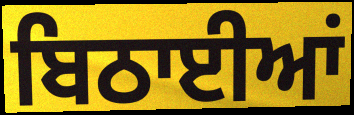
ਬਿਠਾਈਆਂ